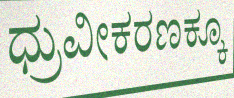
ಧ್ರುವೀಕರಣಕ್ಕೂ